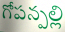
గోపన్పల్లి